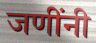
जणींनी